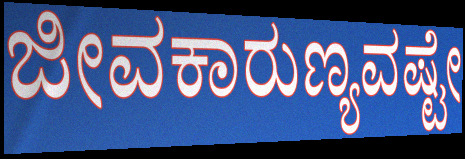
ಜೀವಕಾರುಣ್ಯವಷ್ಟೇ